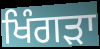
ਖਿੰਗੜਾ